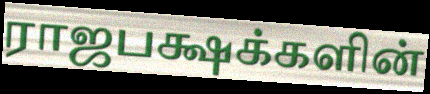
ராஜபக்ஷக்களின்